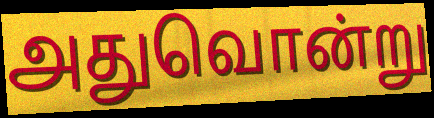
அதுவொன்று